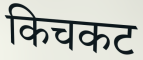
किचकट